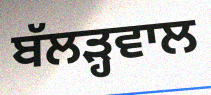
ਬੱਲੜ੍ਹਵਾਲ